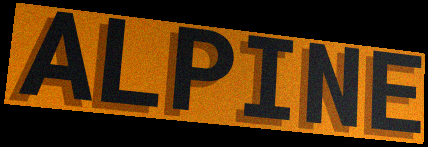
ALPINE